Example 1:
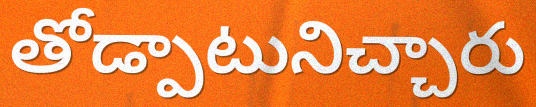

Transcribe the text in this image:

తోడ్పాటునిచ్చారు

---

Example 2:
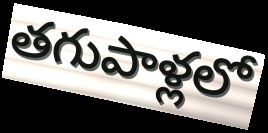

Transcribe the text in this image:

తగుపాళ్లలో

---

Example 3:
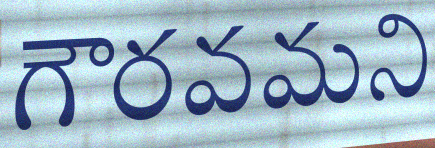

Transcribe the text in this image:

గౌరవమని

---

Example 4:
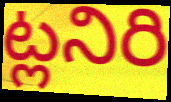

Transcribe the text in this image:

ట్లనిరి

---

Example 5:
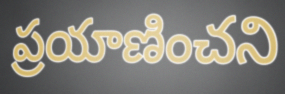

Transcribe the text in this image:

ప్రయాణించని